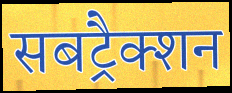
सबट्रैक्शन